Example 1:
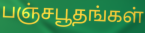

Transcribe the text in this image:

பஞ்சபூதங்கள்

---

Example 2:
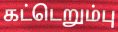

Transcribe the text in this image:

கட்டெறும்பு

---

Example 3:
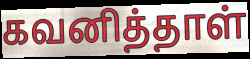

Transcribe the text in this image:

கவனித்தாள்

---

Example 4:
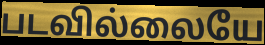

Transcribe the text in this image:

படவில்லையே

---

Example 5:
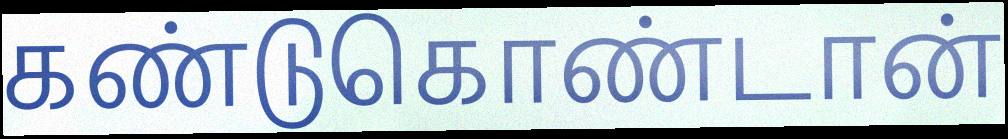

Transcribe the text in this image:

கண்டுகொண்டான்